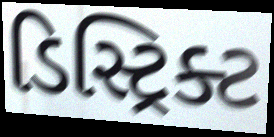
ડિસ્ટ્રિક્ટ